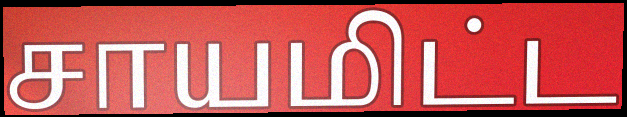
சாயமிட்ட